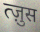
त्ज़ुस